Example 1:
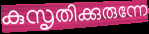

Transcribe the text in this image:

കുസൃതിക്കുരുന്നേ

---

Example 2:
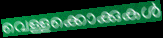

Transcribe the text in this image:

വെള്ളക്കൊക്കുകൾ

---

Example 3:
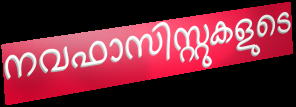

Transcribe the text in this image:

നവഫാസിസ്റ്റുകളുടെ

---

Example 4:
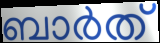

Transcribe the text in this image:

ബാർത്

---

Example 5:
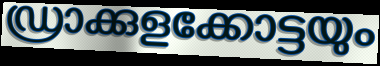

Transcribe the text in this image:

ഡ്രാക്കുളക്കോട്ടയും